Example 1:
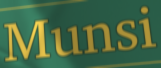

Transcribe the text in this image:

Munsi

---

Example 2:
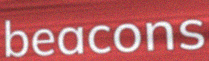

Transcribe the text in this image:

beacons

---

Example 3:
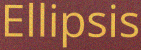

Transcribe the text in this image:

Ellipsis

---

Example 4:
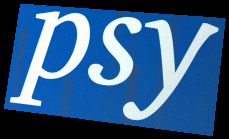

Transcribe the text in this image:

psy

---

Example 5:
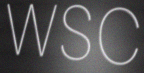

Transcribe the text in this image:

WSC